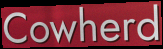
Cowherd